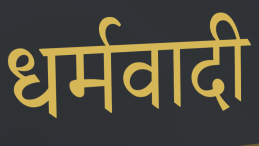
धर्मवादी